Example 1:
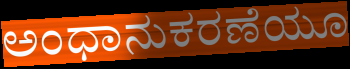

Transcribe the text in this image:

ಅಂಧಾನುಕರಣೆಯೂ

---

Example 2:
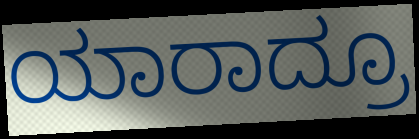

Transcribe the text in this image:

ಯಾರಾದ್ರೂ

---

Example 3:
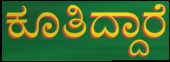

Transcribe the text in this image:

ಕೂತಿದ್ದಾರೆ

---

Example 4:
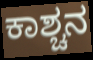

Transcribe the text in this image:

ಕಾಶ್ಚನ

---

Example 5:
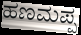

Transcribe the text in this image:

ಹಣಮಪ್ಪ